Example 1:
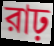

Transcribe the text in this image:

রাঢ়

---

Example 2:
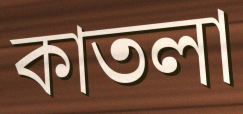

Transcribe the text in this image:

কাতলা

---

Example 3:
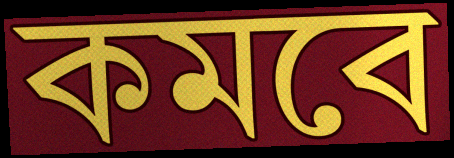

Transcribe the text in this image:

কমবে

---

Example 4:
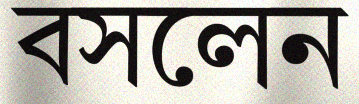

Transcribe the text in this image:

বসলেন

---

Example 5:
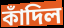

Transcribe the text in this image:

কাঁদিল